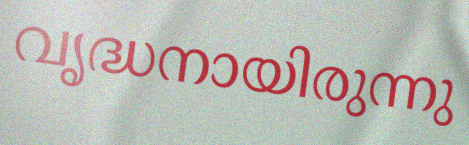
വൃദ്ധനായിരുന്നു